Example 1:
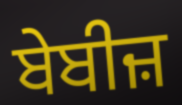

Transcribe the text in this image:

ਬੇਬੀਜ਼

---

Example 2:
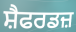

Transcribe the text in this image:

ਸ਼ੈਫਰਡਜ਼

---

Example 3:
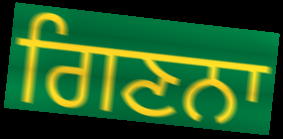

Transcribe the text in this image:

ਗਿਣਨਾ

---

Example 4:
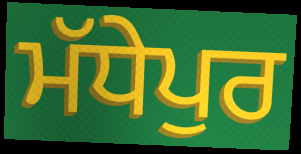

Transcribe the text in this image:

ਮੱਧੇਪੁਰ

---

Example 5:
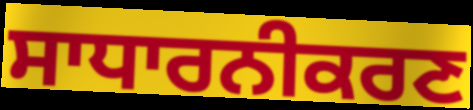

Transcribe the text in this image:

ਸਾਧਾਰਨੀਕਰਣ